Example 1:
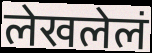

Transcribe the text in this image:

लेखलेलं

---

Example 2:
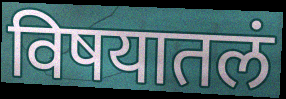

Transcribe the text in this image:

विषयातलं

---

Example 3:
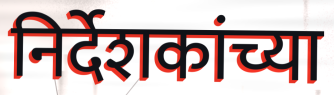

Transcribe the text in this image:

निर्देशकांच्या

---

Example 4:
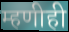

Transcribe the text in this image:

म्हणीही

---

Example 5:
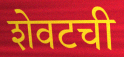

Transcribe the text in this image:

शेवटची